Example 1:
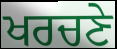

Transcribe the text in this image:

ਖਰਚਣੇ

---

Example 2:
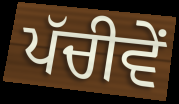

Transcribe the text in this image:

ਪੱਚੀਵੇਂ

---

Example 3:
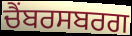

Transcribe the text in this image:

ਚੈਂਬਰਸਬਰਗ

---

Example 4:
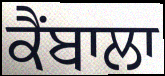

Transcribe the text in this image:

ਕੈਂਬਾਲਾ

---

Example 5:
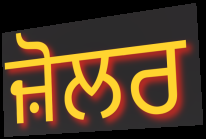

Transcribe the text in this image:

ਜ਼ੋਲਰ